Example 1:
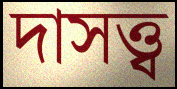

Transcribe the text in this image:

দাসত্ত্ব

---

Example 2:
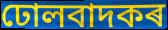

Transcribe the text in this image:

ঢোলবাদকৰ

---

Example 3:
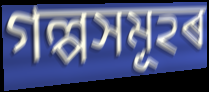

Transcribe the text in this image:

গল্পসমূহৰ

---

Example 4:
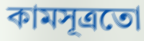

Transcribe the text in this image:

কামসূত্ৰতো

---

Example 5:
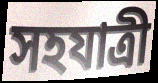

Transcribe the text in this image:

সহযাত্ৰী